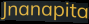
Jnanapita